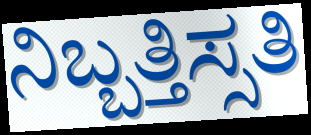
ನಿಬ್ಬತ್ತಿಸ್ಸತಿ